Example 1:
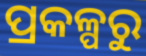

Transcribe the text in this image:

ପ୍ରକଳ୍ପରୁ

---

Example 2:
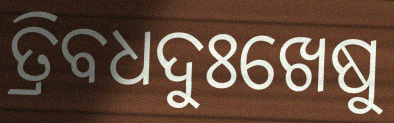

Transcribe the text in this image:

ତ୍ରିବଧଦୁଃଖେଷୁ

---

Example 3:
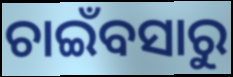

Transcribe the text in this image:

ଚାଇଁବସାରୁ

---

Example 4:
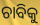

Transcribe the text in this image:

ଚାବିକୁ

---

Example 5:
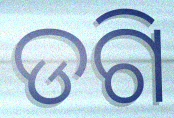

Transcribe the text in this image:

ଡଗି